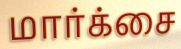
மார்க்சை